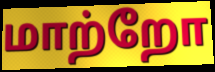
மாற்றோ